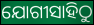
ଯୋଗୀସାହିଠୁ